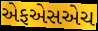
એફએસએચ